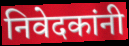
निवेदकांनी